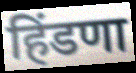
हिंडणा